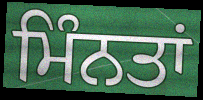
ਮਿੰਨਤਾਂ